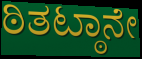
ಠಿತಟ್ಠಾನೇ